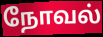
நோவல்